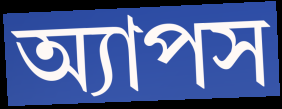
অ্যাপস